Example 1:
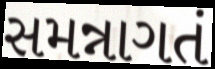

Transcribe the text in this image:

સમન્નાગતં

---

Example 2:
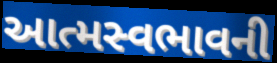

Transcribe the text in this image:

આત્મસ્વભાવની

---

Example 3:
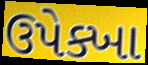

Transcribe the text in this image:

ઉપેક્ખા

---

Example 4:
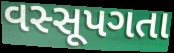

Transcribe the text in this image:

વસ્સૂપગતા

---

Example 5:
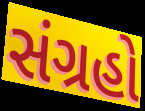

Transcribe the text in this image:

સંગ્રહો